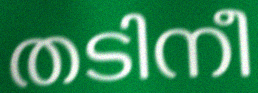
തടിനീ